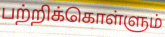
பற்றிக்கொள்ளும்